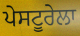
ਪੇਸਟੂਰੇਲਾ